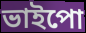
ভাইপো